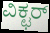
ವಿಕ್ಟರ್